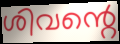
ശിവന്റെ